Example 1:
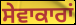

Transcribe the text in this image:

ਸੇਵਾਕਾਰਾਂ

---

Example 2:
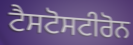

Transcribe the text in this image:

ਟੈਸਟੋਸਟੀਰੋਨ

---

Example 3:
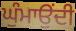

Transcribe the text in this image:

ਘੁੰਮਾਉਂਦੀ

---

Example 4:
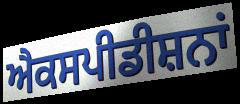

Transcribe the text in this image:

ਐਕਸਪੀਡੀਸ਼ਨਾਂ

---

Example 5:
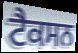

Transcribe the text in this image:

ਟੈਕਸਨ